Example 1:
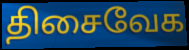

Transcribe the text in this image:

திசைவேக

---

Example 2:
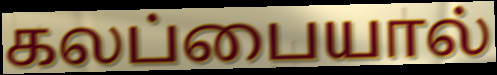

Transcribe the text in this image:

கலப்பையால்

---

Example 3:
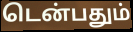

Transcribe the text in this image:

டென்பதும்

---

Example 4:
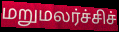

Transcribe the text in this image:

மறுமலர்ச்சிச்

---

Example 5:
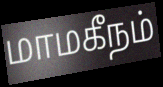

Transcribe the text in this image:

மாமகீநம்